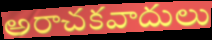
అరాచకవాదులు